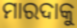
ମାରଦାକୁ